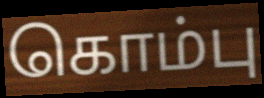
கொம்பு